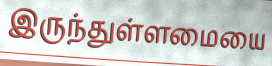
இருந்துள்ளமையை